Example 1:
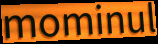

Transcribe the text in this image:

mominul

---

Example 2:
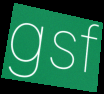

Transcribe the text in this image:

gsf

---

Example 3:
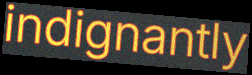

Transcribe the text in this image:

indignantly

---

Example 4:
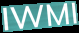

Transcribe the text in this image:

IWMI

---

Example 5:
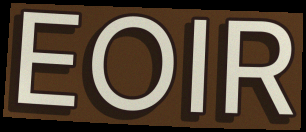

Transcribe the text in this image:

EOIR